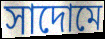
সাদোমে